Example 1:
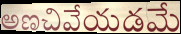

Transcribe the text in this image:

అణచివేయడమే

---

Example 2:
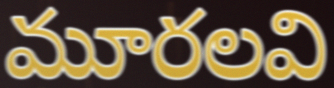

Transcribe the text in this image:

మూరలవి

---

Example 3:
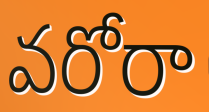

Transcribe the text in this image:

వరోరా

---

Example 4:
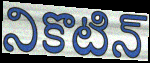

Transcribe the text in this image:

నికొటిన్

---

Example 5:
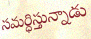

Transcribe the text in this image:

సమర్ధిస్తున్నాడు